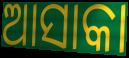
ଆସାକା